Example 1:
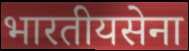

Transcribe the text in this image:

भारतीयसेना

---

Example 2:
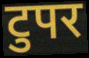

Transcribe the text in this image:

टुपर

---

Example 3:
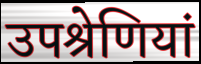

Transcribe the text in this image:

उपश्रेणियां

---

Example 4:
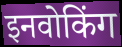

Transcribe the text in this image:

इनवोकिंग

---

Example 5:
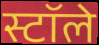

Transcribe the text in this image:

स्टॉले